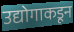
उद्योगाकडून